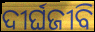
ଦୀର୍ଘଜୀବି